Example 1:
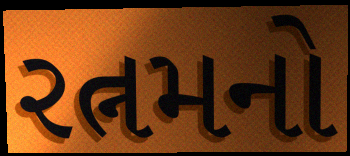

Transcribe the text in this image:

રત્નમનો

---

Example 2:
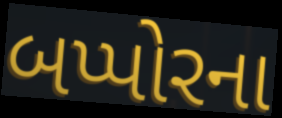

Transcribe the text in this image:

બપ્પોરના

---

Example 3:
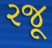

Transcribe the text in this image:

રજૂ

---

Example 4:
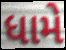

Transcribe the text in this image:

ધામે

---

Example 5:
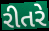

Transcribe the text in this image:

રીતરે